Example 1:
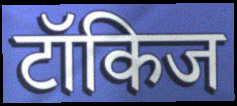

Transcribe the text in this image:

टॉकिज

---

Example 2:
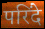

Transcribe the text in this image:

परिंदे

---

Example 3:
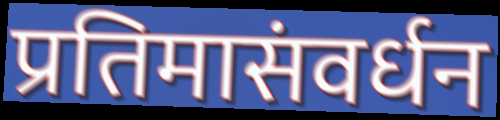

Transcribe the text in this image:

प्रतिमासंवर्धन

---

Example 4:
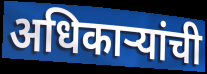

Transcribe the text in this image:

अधिकाऱ्यांची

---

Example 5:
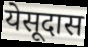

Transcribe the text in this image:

येसूदास